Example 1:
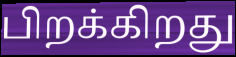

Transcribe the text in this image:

பிறக்கிறது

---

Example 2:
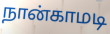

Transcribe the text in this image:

நான்காமடி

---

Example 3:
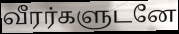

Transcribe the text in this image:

வீரர்களுடனே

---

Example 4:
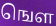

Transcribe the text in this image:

ஙௌ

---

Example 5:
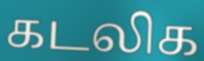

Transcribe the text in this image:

கடலிக